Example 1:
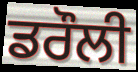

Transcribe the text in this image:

ਡਰੌਲੀ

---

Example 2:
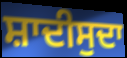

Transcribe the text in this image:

ਸ਼ਾਦੀਸੁਦਾ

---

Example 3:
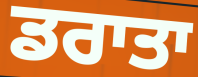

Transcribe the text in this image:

ਡਰਾਤਾ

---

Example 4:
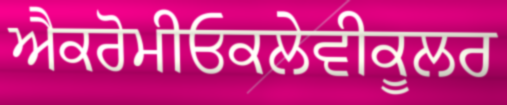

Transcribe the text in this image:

ਐਕਰੋਮੀਓਕਲੇਵੀਕੂਲਰ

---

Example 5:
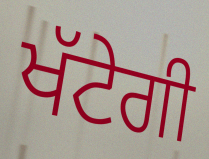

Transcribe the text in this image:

ਖੱਟੇਗੀ